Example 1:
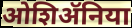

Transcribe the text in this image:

ओशिॲनिया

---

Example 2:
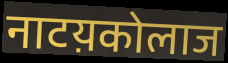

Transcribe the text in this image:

नाटय़कोलाज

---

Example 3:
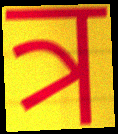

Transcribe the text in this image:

त्र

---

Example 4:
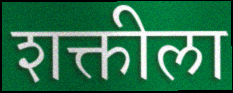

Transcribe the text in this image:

शक्तीला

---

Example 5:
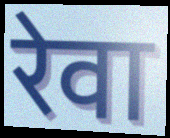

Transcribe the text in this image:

रेवा